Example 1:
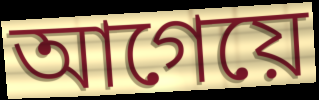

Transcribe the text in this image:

আগেয়ে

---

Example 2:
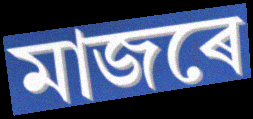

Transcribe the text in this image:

মাজৰে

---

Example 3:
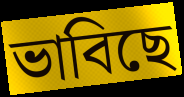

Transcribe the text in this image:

ভাবিছে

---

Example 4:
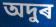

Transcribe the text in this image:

অদুৰ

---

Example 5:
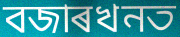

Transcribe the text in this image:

বজাৰখনত